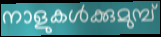
നാളുകൾക്കുമുമ്പ്